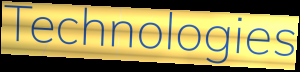
Technologies